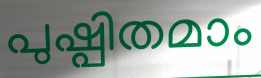
പുഷ്പിതമാം